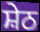
ਸ਼ੇਠ